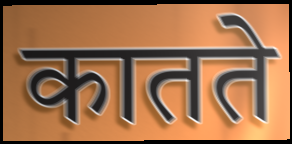
कातते